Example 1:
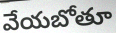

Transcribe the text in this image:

వేయబోతూ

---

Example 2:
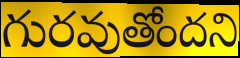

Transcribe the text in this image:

గురవుతోందని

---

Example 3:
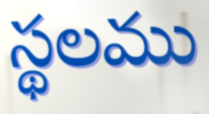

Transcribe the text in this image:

స్థలము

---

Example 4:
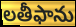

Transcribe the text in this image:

లతీఫాను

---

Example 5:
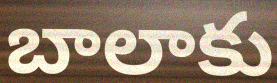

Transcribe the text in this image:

బాలాకు